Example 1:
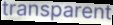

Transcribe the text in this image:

transparent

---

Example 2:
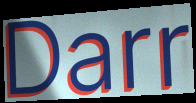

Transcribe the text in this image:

Darr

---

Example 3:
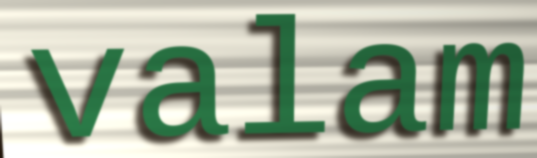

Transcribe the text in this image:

valam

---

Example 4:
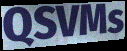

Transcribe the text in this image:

QSVMs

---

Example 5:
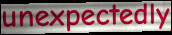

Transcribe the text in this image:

unexpectedly